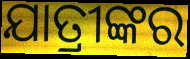
ଯାତ୍ରୀଙ୍କର